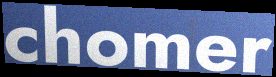
chomer